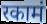
रकामं